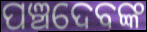
ପଞ୍ଚଦେବଙ୍କ